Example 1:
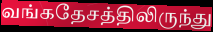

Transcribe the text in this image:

வங்கதேசத்திலிருந்து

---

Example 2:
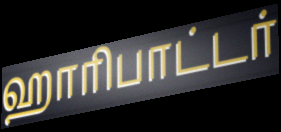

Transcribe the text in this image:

ஹாரிபாட்டர்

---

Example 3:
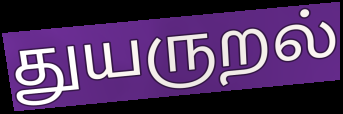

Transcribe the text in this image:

துயருறல்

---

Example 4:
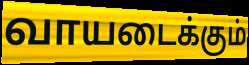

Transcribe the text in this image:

வாயடைக்கும்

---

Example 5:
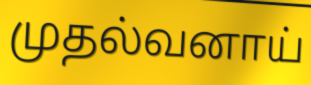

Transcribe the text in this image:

முதல்வனாய்